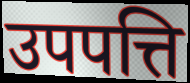
उपपत्ति